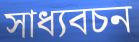
সাধ্যবচন